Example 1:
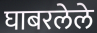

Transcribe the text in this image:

घाबरलेले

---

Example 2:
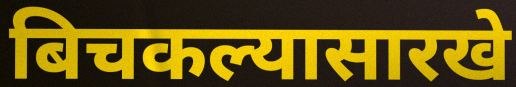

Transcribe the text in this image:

बिचकल्यासारखे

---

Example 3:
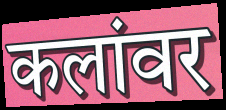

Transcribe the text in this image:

कलांवर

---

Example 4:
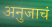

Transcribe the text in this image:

अनुजाचं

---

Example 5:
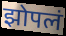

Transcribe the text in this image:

झोपलं